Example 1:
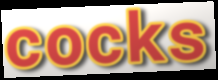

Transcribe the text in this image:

cocks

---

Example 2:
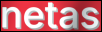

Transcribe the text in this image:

netas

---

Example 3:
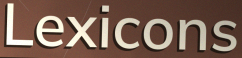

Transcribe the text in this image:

Lexicons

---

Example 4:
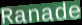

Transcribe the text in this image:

Ranade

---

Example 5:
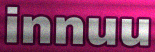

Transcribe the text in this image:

innuu